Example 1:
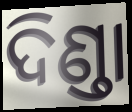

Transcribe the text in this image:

ଦିଣ୍ଡା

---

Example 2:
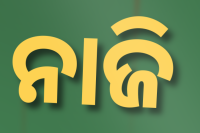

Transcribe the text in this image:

ନାଜି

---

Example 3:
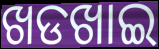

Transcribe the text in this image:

ଖଡଖାଇ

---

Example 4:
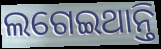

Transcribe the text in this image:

ଲଗେଇଥାନ୍ତି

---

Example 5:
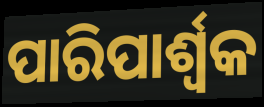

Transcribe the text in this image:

ପାରିପାର୍ଶ୍ଵକ